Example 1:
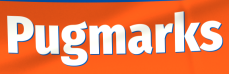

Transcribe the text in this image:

Pugmarks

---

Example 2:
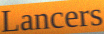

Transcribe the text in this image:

Lancers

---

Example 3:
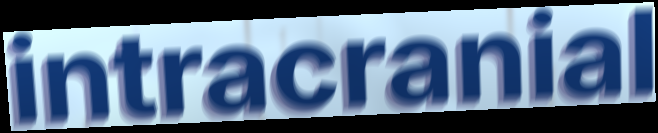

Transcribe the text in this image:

intracranial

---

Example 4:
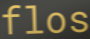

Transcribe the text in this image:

flos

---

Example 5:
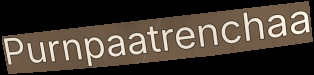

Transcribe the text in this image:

Purnpaatrenchaa